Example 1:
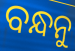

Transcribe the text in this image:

ବନ୍ଧନୁ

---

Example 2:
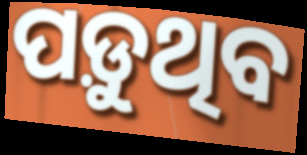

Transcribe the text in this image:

ପଡ଼ୁଥିବ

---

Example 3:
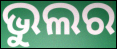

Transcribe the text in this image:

ଭୁଲର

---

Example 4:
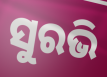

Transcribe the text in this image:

ସୁରଭି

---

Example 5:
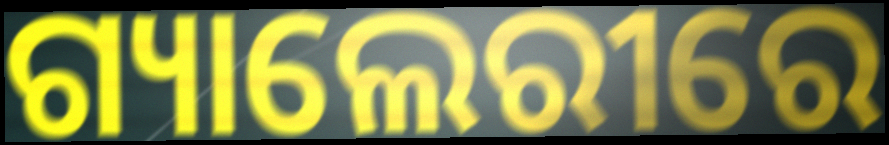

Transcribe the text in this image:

ଗ୍ୟାଲେରୀରେ